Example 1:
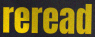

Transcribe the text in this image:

reread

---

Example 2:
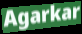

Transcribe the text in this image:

Agarkar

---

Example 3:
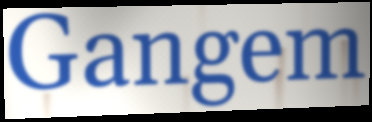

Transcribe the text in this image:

Gangem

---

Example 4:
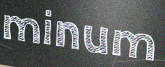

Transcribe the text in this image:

minum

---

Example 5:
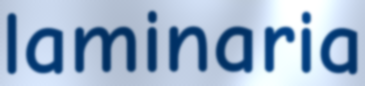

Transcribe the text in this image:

laminaria